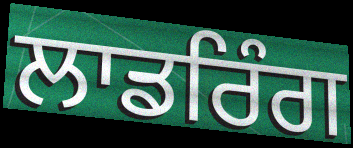
ਲਾਡਰਿੰਗ